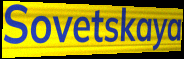
Sovetskaya